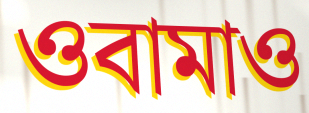
ওবামাও